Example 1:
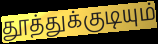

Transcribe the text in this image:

தூத்துக்குடியும்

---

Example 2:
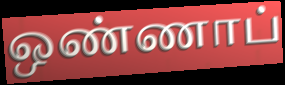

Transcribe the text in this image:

ஒண்ணாப்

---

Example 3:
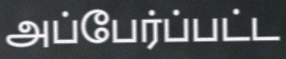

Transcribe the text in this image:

அப்பேர்ப்பட்ட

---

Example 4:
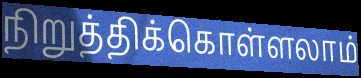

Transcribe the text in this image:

நிறுத்திக்கொள்ளலாம்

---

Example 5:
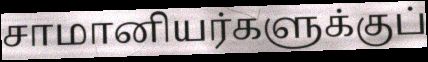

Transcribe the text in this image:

சாமானியர்களுக்குப்